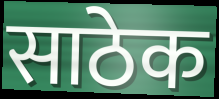
साठेक